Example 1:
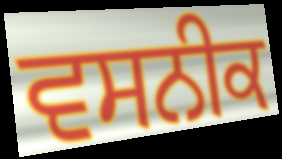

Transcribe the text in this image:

ਵਸਨੀਕ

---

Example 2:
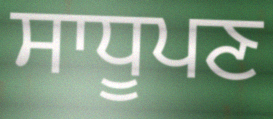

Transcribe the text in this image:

ਸਾਧੂਪਣ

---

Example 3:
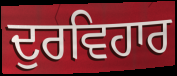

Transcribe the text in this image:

ਦੁਰਵਿਹਾਰ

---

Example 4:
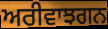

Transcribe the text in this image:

ਅਰੀਵਾਝਗਨ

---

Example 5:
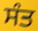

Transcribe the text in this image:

ਸੰਤ